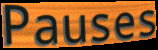
Pauses